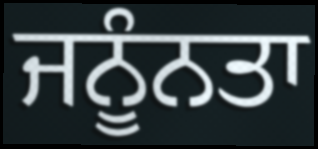
ਜਨੂੰਨਤਾ